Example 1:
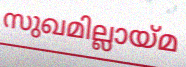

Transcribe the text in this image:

സുഖമില്ലായ്മ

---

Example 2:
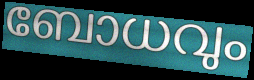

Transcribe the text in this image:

ബോധവും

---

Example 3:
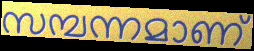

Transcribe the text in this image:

സമ്പന്നമാണ്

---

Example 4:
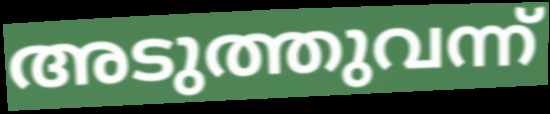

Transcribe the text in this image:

അടുത്തുവന്ന്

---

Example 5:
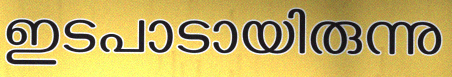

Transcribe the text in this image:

ഇടപാടായിരുന്നു